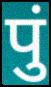
पुं